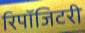
रिपॉजिटरी